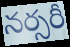
నర్సరీ